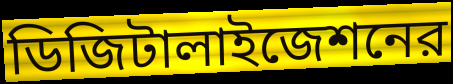
ডিজিটালাইজেশনের